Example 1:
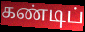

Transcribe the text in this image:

கண்டிப்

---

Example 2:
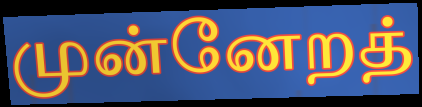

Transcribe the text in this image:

முன்னேறத்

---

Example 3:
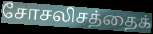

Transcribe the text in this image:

சோசலிசத்தைக்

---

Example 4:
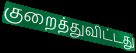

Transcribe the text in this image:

குறைத்துவிட்டது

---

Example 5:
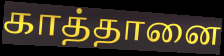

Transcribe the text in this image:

காத்தானை